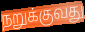
நறுக்குவது